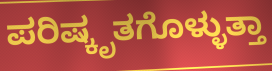
ಪರಿಷ್ಕೃತಗೊಳ್ಳುತ್ತಾ